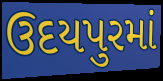
ઉદયપુરમાં